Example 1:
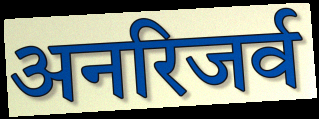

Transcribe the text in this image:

अनरिजर्व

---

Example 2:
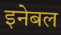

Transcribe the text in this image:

इनेबल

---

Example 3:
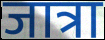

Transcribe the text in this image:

जात्रा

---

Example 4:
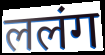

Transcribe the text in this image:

ललंग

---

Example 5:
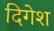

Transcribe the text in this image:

दिगेश